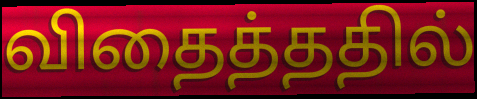
விதைத்ததில்